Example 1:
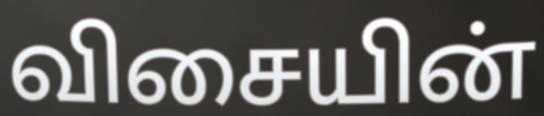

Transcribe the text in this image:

விசையின்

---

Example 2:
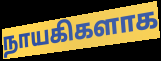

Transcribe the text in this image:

நாயகிகளாக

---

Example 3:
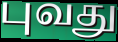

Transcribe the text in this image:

புவது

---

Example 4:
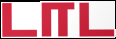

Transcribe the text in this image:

டாட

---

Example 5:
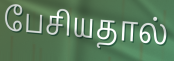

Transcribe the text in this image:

பேசியதால்